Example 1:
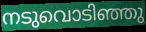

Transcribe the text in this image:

നടുവൊടിഞ്ഞു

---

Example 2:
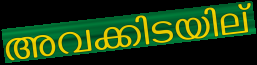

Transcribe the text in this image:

അവക്കിടയില്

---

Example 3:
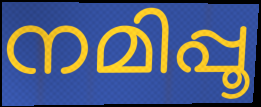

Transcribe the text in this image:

നമിപ്പൂ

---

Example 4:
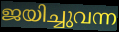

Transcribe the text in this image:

ജയിച്ചുവന്ന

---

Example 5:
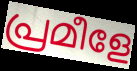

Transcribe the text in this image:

പ്രമീളേ